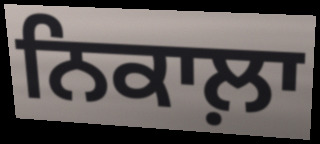
ਨਿਕਾਲ਼ਾ